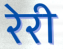
रेरी